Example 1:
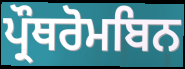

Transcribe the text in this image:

ਪ੍ਰੌਥਰੋਮਬਿਨ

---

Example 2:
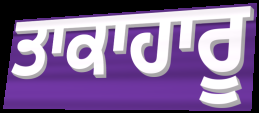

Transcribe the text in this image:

ਤਾਕਾਹਾਰੂ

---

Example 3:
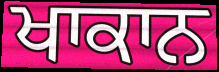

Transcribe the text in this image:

ਖਾਕਾਨ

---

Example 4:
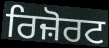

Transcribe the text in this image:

ਰਿਜ਼ੋਰਟ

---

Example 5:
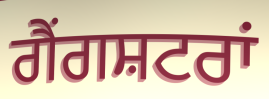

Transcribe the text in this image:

ਗੈਂਗਸ਼ਟਰਾਂ